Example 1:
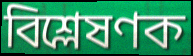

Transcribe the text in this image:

বিশ্লেষণক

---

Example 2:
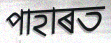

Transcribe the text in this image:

পাহাৰত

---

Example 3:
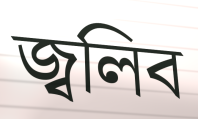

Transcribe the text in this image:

জ্বলিব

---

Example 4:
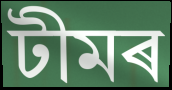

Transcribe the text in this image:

টীমৰ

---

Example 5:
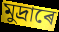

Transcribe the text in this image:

মুদ্ৰাৰে